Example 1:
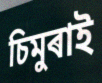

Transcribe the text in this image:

চিমুৰাই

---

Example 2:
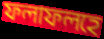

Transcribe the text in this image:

ফলাফলহে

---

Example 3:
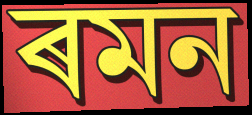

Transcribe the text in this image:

ৰমন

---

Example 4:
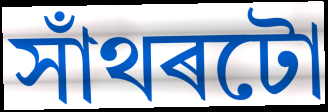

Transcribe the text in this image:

সাঁথৰটো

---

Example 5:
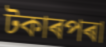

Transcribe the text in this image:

টকাৰপৰা